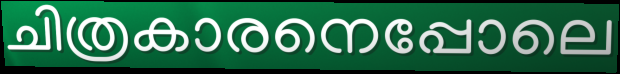
ചിത്രകാരനെപ്പോലെ